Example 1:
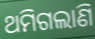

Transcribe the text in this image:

ଥମିଗଲାଣି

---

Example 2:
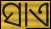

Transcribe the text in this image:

ସାଏ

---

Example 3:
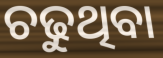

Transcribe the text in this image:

ଚଢୁଥିବା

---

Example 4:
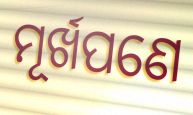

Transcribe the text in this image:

ମୂର୍ଖପଣେ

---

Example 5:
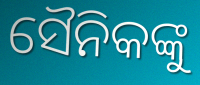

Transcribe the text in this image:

ସୈନିକଙ୍କୁ